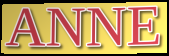
ANNE